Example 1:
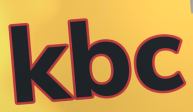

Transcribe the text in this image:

kbc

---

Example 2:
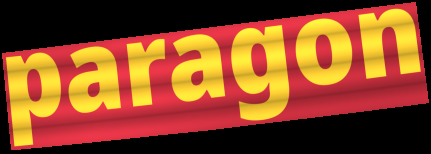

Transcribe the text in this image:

paragon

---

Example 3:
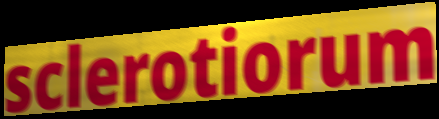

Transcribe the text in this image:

sclerotiorum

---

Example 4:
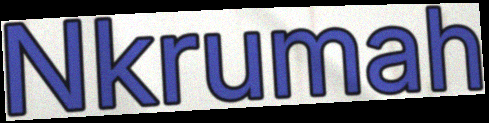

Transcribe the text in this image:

Nkrumah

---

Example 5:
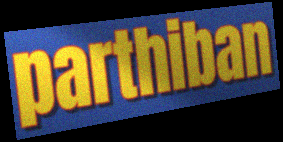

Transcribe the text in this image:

parthiban